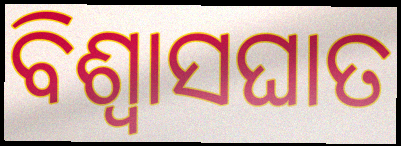
ବିଶ୍ବାସଘାତ